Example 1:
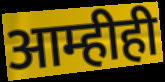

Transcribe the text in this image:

आम्हीही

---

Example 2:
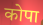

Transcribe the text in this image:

कोपा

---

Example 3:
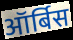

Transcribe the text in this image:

ऑर्बिस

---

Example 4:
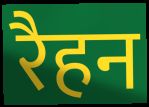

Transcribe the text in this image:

रैहन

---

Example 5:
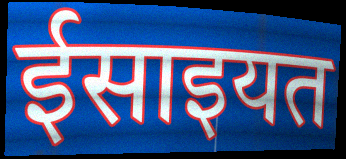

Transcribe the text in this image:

ईसाइयत